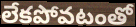
లేకపోవటంతో